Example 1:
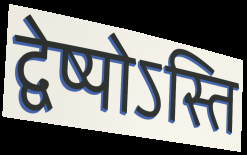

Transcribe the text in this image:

द्वेष्योऽस्ति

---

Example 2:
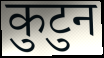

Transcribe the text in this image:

कुटुन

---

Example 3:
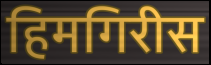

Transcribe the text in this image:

हिमगिरीस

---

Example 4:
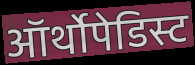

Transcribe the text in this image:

ऑर्थोपेडिस्ट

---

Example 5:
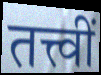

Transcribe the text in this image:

तत्त्वीं